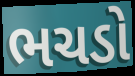
ભચડો